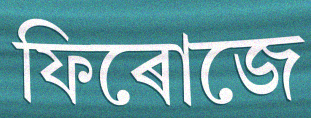
ফিৰোজে